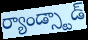
ర్యాండ్స్టాడ్